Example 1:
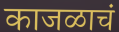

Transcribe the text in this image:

काजळाचं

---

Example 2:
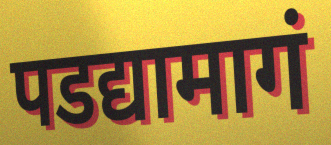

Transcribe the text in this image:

पडद्यामागं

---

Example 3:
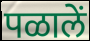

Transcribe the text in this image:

पळालें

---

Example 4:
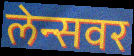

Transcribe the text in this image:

लेन्सवर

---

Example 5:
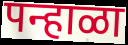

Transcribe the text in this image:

पन्हाळा